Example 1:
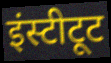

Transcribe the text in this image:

इंस्टीटूट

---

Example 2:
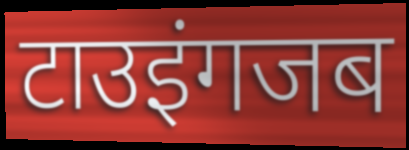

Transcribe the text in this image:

टाउइंगजब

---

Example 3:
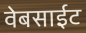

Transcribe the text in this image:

वेबसाईट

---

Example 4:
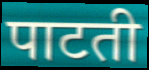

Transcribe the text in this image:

पाटती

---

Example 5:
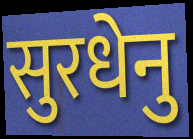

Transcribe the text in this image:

सुरधेनु